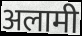
अलामी